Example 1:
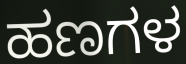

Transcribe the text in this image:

ಹಣಗಳ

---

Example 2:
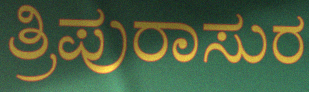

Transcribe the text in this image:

ತ್ರಿಪುರಾಸುರ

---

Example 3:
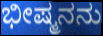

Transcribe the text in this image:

ಭೀಷ್ಮನನು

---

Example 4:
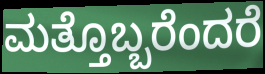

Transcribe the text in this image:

ಮತ್ತೊಬ್ಬರೆಂದರೆ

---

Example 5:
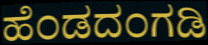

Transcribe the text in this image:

ಹೆಂಡದಂಗಡಿ